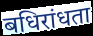
बधिरांधता